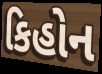
કિહોન